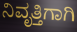
ನಿವೃತ್ತಿಗಾಗಿ